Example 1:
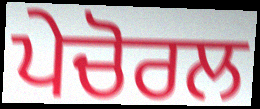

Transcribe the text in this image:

ਪੇਚੋਰਲ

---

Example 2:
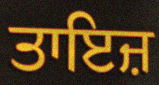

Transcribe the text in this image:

ਤਾਇਜ਼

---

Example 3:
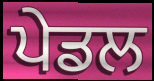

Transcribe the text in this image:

ਪੇਡਲ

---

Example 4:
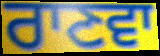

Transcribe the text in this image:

ਰਾਣਵਾ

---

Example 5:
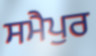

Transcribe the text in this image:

ਸਮੈਪੁਰ